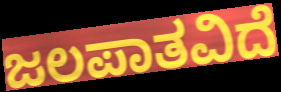
ಜಲಪಾತವಿದೆ